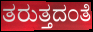
ತರುತ್ತದಂತೆ